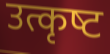
उत्‍कृष्‍ट